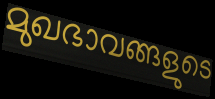
മുഖഭാവങ്ങളുടെ